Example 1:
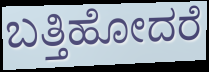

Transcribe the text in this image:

ಬತ್ತಿಹೋದರೆ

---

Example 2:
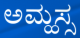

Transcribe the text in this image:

ಅಮ್ಹಸ್ಸ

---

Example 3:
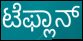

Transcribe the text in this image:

ಟೆಫ್ಲಾನ್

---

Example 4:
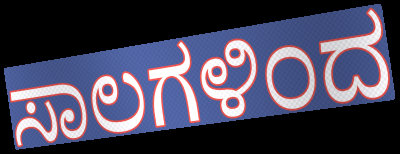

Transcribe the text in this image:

ಸಾಲಗಳಿಂದ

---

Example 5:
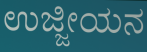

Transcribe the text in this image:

ಉಜ್ಜೀಯನ